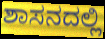
ಶಾಸನದಲ್ಲಿ